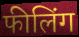
फीलिंग